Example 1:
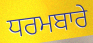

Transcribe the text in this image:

ਧਰਮਬਾਰੇ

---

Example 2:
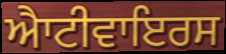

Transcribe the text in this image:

ਐਾਟੀਵਾਇਰਸ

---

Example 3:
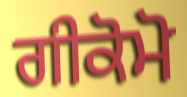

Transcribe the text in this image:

ਗੀਕੋਮੋ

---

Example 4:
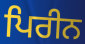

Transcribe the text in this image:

ਪਿਰੀਨ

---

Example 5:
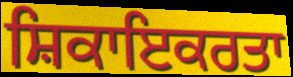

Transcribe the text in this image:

ਸ਼ਿਕਾਇਕਰਤਾ